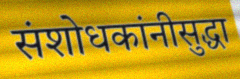
संशोधकांनीसुद्धा